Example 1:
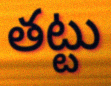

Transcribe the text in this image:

తట్టు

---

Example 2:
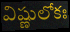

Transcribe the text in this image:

విష్ణులోకః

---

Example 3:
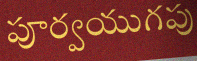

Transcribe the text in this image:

పూర్వయుగపు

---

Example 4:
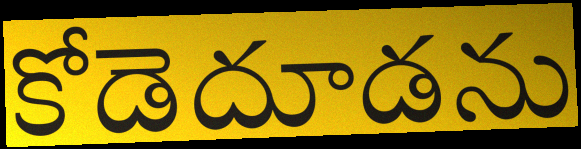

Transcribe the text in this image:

కోడెదూడను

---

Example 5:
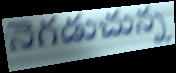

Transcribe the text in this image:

నెగడుచున్న